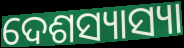
ଦେଶସ୍ୟାସ୍ୟା